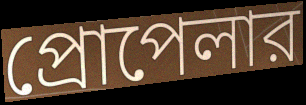
প্রোপেলার